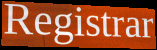
Registrar